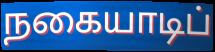
நகையாடிப்